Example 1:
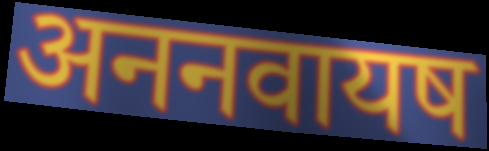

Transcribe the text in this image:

अननवायष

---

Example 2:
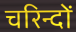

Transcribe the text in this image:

चरिन्दों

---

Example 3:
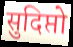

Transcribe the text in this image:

सुदिप्तो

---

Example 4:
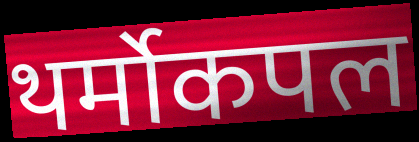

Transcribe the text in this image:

थर्मोकपल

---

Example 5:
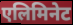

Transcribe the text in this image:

एलिमिनेट